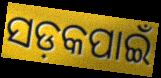
ସଡ଼କପାଇଁ